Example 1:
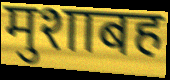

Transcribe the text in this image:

मुशाबह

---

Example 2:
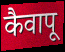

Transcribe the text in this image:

कैवापू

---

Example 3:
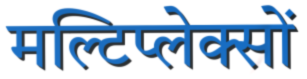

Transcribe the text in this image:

मल्टिप्लेक्सों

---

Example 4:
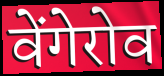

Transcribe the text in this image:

वेंगेरोव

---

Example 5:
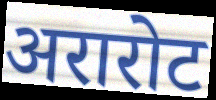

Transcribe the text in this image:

अरारोट